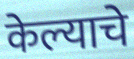
केल्याचे